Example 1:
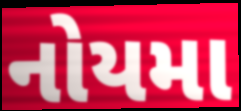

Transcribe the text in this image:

નોયમા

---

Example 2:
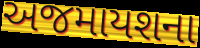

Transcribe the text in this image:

અજમાયશના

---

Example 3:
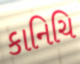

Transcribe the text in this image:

કાનિચિ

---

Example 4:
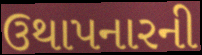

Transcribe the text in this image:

ઉથાપનારની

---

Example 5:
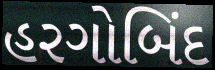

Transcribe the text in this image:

હરગોબિંદ